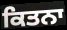
ਕਿਤਨਾ